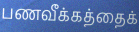
பணவீக்கத்தைக்